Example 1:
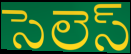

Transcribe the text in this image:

సెలెస్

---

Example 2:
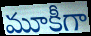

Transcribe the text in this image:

మూకీగా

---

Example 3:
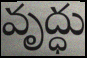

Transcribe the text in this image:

వృద్ధు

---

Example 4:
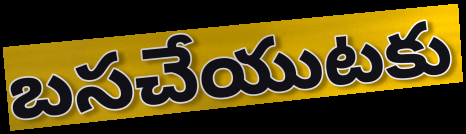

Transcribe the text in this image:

బసచేయుటకు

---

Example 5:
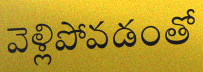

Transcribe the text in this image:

వెళ్లిపోవడంతో